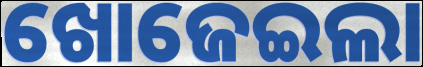
ଖୋଜେଇଲା